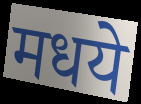
मधये